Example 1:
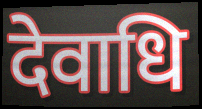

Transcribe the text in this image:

देवाधि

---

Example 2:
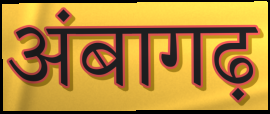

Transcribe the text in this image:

अंबागढ़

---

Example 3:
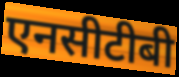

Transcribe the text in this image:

एनसीटीबी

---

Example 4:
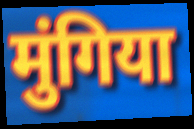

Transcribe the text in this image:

मुंगिया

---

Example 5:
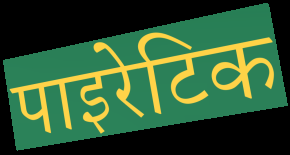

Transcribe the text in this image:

पाइरेटिक